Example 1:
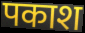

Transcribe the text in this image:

पकाश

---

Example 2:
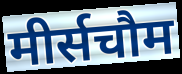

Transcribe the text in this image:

मीर्सचौम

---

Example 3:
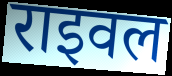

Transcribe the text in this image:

राइवल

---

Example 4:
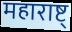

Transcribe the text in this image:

महाराष्ट्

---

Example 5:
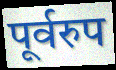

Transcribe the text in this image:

पूर्वरुप